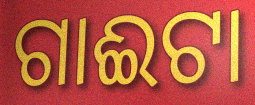
ଗାଈଟା